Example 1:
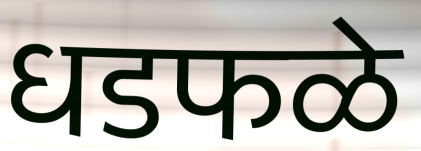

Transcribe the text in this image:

धडफळे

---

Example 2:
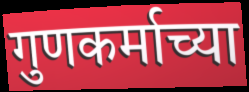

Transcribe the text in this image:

गुणकर्माच्या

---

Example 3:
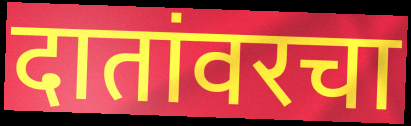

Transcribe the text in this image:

दातांवरचा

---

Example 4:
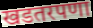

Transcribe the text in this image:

खडतरपणा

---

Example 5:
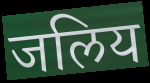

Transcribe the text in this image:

जलिय